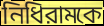
নিধিরামকে